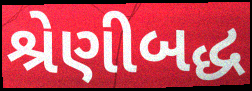
શ્રેણીબદ્ધ